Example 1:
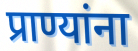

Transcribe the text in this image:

प्राण्यांना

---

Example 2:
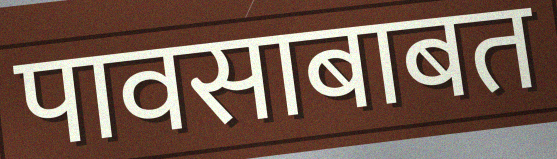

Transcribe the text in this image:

पावसाबाबत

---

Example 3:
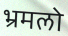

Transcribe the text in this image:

भ्रमलो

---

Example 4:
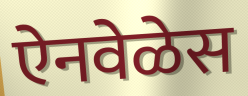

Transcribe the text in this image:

ऐनवेळेस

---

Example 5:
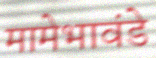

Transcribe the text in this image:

मामेभावंडे